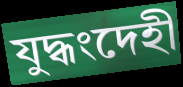
যুদ্ধংদেহী